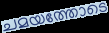
ചമയത്തോടെ